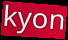
kyon